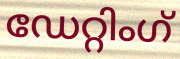
ഡേറ്റിംഗ്